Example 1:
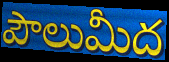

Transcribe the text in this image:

పౌలుమీద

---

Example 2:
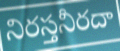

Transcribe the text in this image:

నిరస్తనీరదా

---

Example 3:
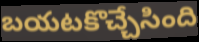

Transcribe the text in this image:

బయటకొచ్చేసింది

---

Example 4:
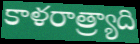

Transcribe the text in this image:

కాళరాత్ర్యాది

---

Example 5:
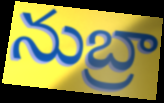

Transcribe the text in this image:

నుబ్రా